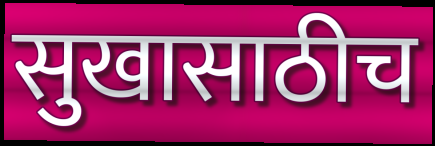
सुखासाठीच